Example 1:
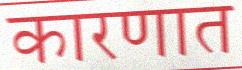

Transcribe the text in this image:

कारणात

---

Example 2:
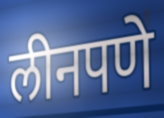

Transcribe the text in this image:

लीनपणे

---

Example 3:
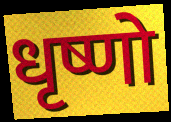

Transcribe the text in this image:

धृष्णो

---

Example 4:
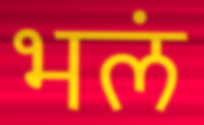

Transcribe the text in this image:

भलं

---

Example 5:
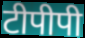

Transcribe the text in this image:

टीपीपी